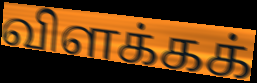
விளக்கக்